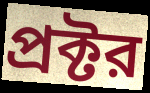
প্রক্টর